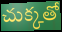
చుక్కతో